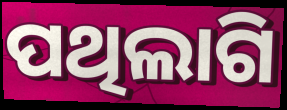
ପଥିଲାଗି